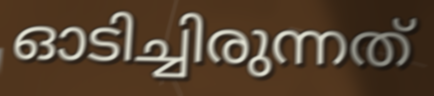
ഓടിച്ചിരുന്നത്